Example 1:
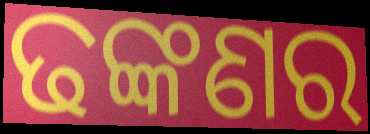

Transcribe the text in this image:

ଢଙ୍କଣର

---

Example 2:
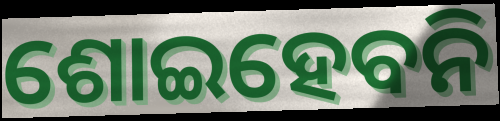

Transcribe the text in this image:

ଶୋଇହେବନି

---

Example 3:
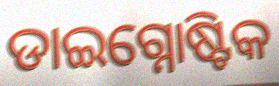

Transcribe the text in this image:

ଡାଇଗ୍ନୋଷ୍ଟିକ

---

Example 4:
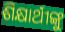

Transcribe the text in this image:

ଶିକ୍ଷାର୍ଥୀଙ୍କୁ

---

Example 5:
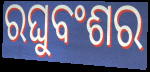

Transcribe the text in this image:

ରଘୁବଂଶର